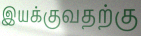
இயக்குவதற்கு